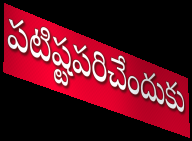
పటిష్టపరిచేందుకు